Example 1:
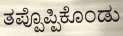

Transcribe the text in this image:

ತಪ್ಪೊಪ್ಪಿಕೊಂಡು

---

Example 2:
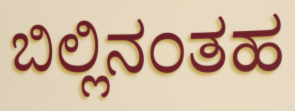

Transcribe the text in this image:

ಬಿಲ್ಲಿನಂತಹ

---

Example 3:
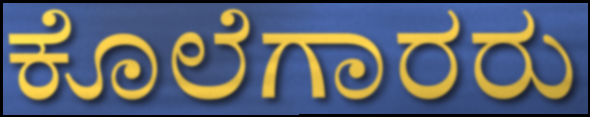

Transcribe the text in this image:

ಕೊಲೆಗಾರರು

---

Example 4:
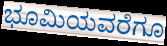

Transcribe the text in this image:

ಭೂಮಿಯವರೆಗೂ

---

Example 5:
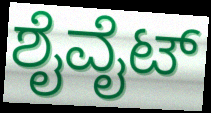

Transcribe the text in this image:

ಶೈವೈಟ್